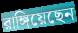
রাঙ্গিয়েছেন